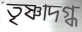
তৃষ্ণাদগ্ধ